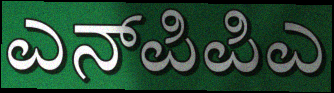
ಎನ್‌ಪಿಪಿಎ